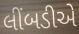
લીંબડીએ